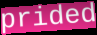
prided